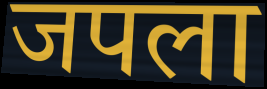
जपला